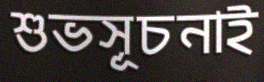
শুভসূচনাই